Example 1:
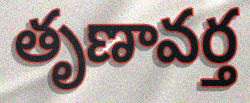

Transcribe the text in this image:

తృణావర్త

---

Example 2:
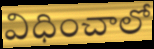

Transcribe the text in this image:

విధించాలో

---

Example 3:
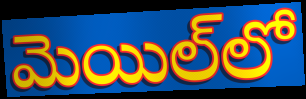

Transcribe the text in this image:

మెయిల్‌లో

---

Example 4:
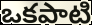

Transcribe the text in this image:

ఒకపాటి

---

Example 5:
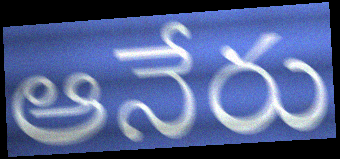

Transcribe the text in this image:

ఆనేరు